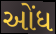
ઓંધ